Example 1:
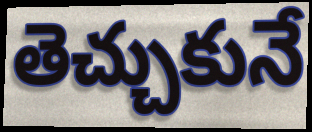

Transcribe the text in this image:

తెచ్చుకునే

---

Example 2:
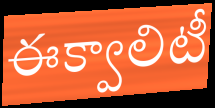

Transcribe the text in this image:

ఈక్వాలిటీ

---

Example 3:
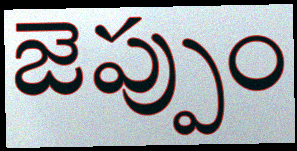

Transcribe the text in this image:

జెప్పుం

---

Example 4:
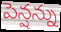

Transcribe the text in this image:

పెన్షన్ను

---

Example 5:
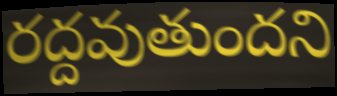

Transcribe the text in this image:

రద్దవుతుందని